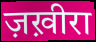
ज़ख़ीरा